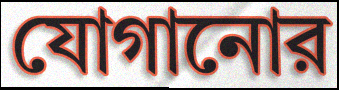
যোগানোর